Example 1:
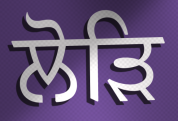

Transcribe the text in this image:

ਲੋੜਿ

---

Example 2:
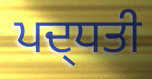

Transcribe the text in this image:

ਪਦ੍ਧਤੀ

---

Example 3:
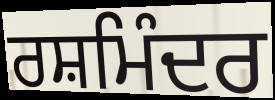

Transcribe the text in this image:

ਰਸ਼ਮਿੰਦਰ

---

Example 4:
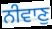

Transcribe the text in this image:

ਨੀਵਾਣੁ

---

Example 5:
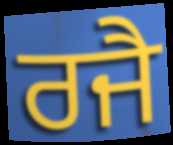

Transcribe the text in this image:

ਰਜੈ